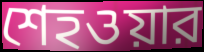
শেহওয়ার